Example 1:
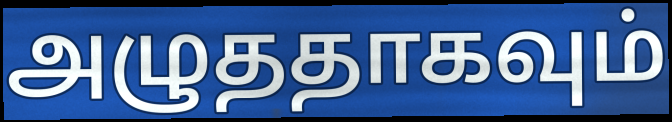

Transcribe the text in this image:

அழுததாகவும்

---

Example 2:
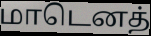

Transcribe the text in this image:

மாடெனத்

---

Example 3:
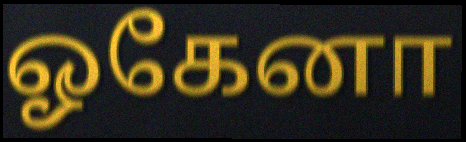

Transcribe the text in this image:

ஓகேனா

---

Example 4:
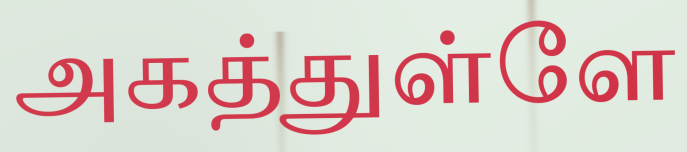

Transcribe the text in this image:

அகத்துள்ளே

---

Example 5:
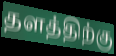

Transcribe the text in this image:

தளத்திற்கு